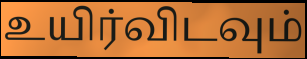
உயிர்விடவும்